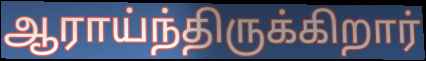
ஆராய்ந்திருக்கிறார்